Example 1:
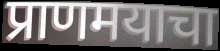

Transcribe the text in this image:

प्राणमयाचा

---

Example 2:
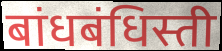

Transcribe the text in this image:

बांधबंधिस्ती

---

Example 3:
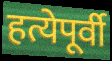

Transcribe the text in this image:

हत्येपूर्वी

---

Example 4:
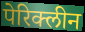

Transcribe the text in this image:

पेरिक्लीन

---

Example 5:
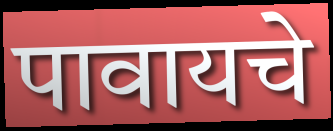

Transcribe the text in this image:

पावायचे